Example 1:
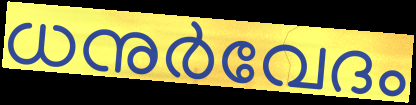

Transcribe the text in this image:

ധനുർവേദം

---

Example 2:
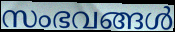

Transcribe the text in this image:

സംഭവങ്ങൾ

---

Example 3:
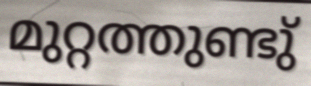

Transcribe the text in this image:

മുറ്റത്തുണ്ടു്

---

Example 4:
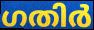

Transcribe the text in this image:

ഗതിർ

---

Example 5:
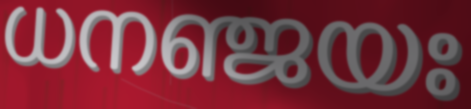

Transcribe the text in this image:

ധനഞ്ജയഃ